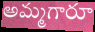
అమ్మగారూ